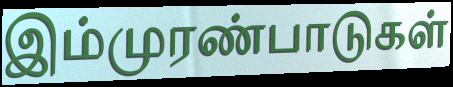
இம்முரண்பாடுகள்